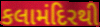
કલામંદિરથી